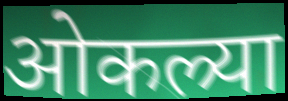
ओकल्या